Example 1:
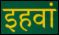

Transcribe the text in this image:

इहवां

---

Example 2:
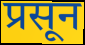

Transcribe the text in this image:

प्रसून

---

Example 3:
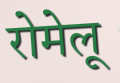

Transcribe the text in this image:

रोमेलू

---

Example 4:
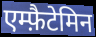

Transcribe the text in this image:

एम्फ़ैटेमिन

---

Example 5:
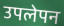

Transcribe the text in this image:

उपलेपन